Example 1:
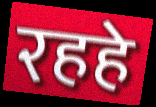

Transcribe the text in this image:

रहहे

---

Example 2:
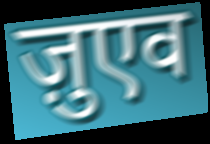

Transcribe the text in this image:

ज़ुएव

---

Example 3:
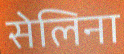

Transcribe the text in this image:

सेलिना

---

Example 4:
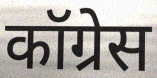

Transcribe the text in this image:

कॉग्रेस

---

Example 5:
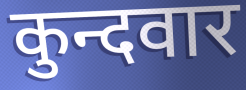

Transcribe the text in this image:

कुन्दवार